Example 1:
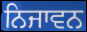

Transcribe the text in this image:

ਨਿਜਾਵਨ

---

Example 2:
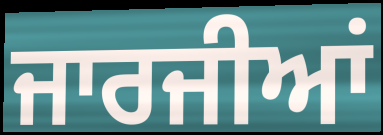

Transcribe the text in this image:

ਜਾਰਜੀਆਂ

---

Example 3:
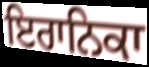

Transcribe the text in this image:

ਇਰਾਨਿਕਾ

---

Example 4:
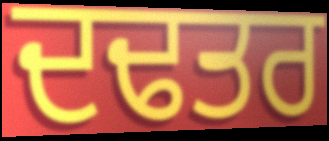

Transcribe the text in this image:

ਦਢਤਰ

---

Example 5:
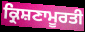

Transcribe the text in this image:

ਕ੍ਰਿਸ਼ਣਾਮੂਰਤੀ